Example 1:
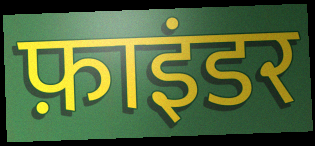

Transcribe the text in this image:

फ़ाइंडर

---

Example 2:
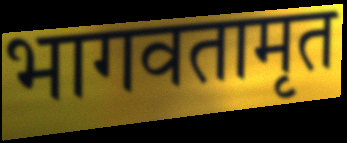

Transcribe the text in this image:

भागवतामृत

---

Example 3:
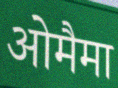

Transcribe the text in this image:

ओमैमा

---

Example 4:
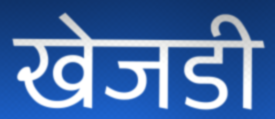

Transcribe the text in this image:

खेजडी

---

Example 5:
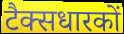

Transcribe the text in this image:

टैक्सधारकों